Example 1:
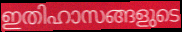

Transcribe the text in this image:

ഇതിഹാസങ്ങളുടെ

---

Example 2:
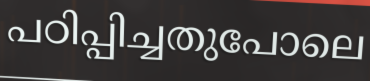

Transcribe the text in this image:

പഠിപ്പിച്ചതുപോലെ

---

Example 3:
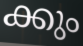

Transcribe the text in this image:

ക്കും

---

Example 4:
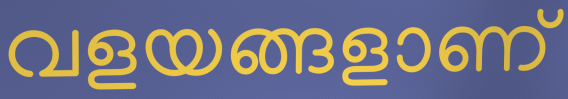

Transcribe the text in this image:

വളയങ്ങളാണ്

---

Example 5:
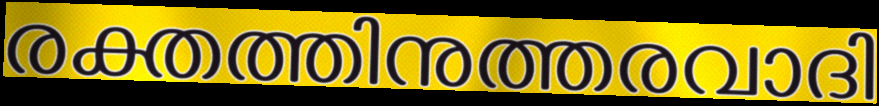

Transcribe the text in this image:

രക്തത്തിനുത്തരവാദി